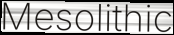
Mesolithic